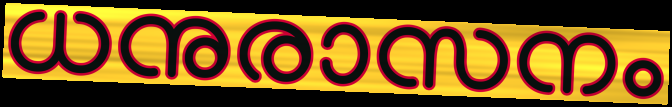
ധനുരാസനം